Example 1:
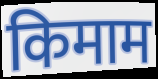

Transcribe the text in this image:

किमाम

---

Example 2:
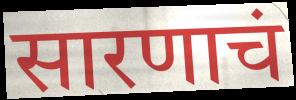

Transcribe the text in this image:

सारणाचं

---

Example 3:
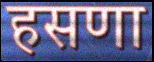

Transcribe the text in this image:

हसणा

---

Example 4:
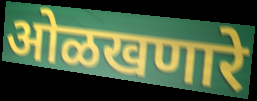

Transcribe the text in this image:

ओळखणारे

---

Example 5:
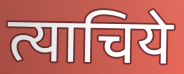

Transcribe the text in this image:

त्याचिये